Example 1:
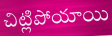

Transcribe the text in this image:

చిట్లిపోయాయి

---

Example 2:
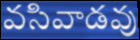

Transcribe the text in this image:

వసివాడవు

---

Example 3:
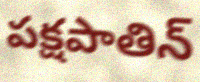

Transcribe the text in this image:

పక్షపాతిన్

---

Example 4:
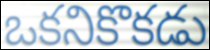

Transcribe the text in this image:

ఒకనికొకడు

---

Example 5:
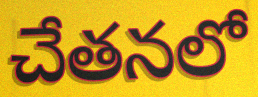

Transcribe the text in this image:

చేతనలో